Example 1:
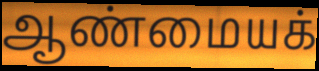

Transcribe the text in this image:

ஆண்மையக்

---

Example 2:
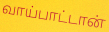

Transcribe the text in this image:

வாய்பாட்டான்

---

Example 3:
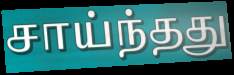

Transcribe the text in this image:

சாய்ந்தது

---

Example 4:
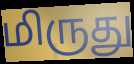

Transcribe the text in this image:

மிருது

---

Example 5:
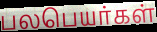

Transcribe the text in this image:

பலபெயர்கள்